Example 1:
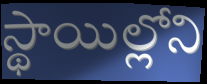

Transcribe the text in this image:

స్థాయిల్లోని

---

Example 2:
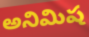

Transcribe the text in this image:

అనిమిష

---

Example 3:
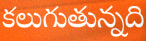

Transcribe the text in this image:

కలుగుతున్నది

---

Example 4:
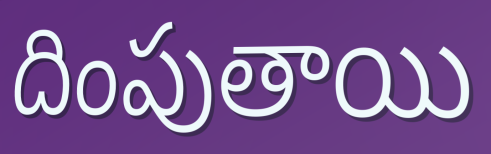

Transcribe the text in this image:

దింపుతాయి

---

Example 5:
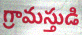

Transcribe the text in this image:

గ్రామస్తుడి